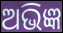
ଅଭିଜ୍ଞ